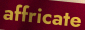
affricate